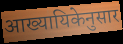
आख्यायिकेनुसार